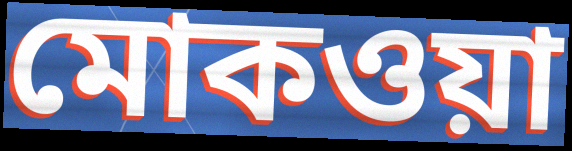
মোকওয়া